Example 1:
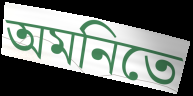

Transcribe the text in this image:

অমনিতে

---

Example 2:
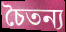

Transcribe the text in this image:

চৈতন্য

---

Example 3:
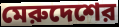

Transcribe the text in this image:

মেরুদেশের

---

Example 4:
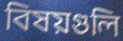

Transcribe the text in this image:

বিষয়গুলি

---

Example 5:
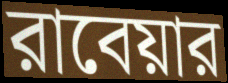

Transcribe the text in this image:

রাবেয়ার